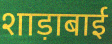
शाड़ाबाई